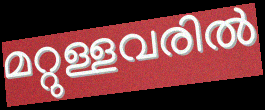
മറ്റുള്ളവരിൽ